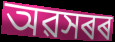
অৱসৰৰ